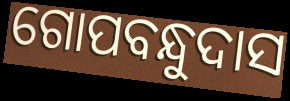
ଗୋପବନ୍ଧୁଦାସ